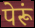
पेरूं